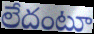
లేదంటూ